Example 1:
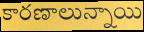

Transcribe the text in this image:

కారణాలున్నాయి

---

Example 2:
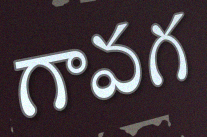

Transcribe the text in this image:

గావగ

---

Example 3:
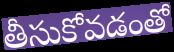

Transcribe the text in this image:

తీసుకోవడంతో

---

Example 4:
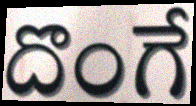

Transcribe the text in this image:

దొంగే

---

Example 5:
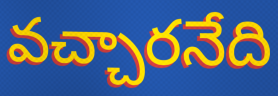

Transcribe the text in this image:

వచ్చారనేది